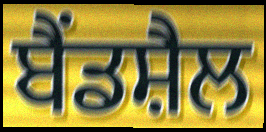
ਬੈਂਡਸ਼ੈਲ